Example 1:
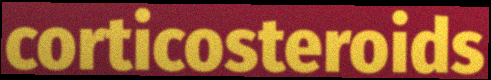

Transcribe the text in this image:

corticosteroids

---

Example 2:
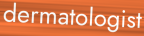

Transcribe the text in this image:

dermatologist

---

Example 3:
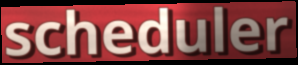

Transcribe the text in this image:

scheduler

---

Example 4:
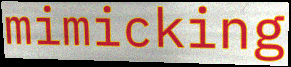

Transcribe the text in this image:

mimicking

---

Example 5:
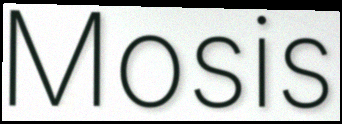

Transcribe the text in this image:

Mosis